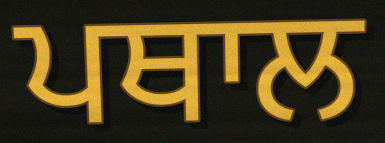
ਪਥਾਲ